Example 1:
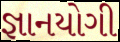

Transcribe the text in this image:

જ્ઞાનયોગી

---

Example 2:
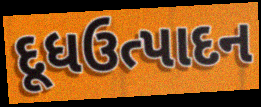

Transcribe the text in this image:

દૂધઉત્પાદન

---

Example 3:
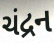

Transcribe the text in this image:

ચંદ્રન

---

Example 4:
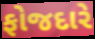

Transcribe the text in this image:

ફોજદારે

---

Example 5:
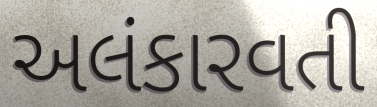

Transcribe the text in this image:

અલંકારવતી